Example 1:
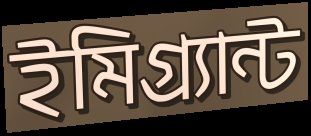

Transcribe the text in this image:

ইমিগ্র্যান্ট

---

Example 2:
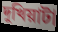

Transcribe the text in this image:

দুখিয়াটা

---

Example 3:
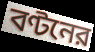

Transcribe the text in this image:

বণ্টনের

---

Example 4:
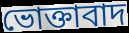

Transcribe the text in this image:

ভোক্তাবাদ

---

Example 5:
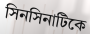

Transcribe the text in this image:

সিনসিনাটিকে